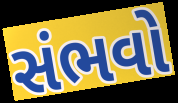
સંભવો